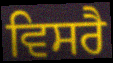
ਵਿਸਰੈ